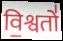
वि॒श्वतो॑